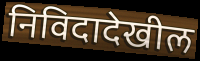
निविदादेखील